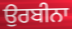
ਉਰਬੀਨਾ